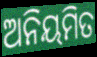
ଅନିୟମିତ